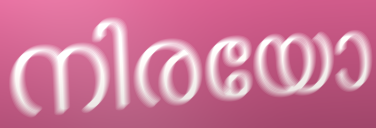
നിരയോ